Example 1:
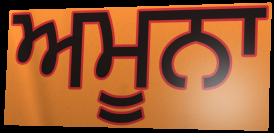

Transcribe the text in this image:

ਅਮੂਨਾ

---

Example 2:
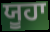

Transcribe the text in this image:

ਯੂਹਾ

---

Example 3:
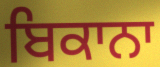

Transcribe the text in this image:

ਬਿਕਾਨਾ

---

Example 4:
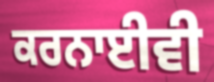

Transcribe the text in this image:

ਕਰਨਾਈਵੀ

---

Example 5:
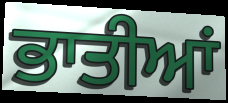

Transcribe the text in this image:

ਭਾਤੀਆਂ